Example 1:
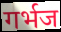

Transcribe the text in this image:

गर्भज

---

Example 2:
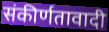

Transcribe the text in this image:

संकीर्णतावादी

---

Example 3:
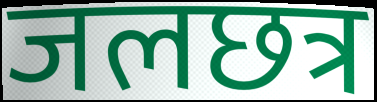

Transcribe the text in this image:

जलछत्र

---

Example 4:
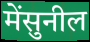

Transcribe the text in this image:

मेंसुनील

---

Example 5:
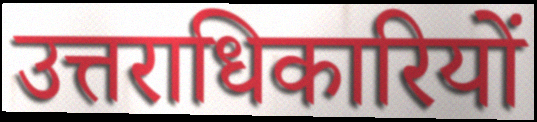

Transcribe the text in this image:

उत्तराधिकारियों